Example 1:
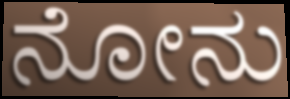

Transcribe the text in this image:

ನೋನು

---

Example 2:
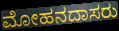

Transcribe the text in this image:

ಮೋಹನದಾಸರು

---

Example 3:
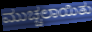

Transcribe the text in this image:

ಮುಚ್ಚಲಾಯಿತು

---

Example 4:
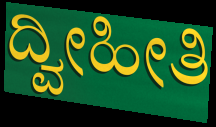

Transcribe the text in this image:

ದ್ವೀಹೀತಿ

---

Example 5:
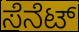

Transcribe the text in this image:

ಸೆನೆಟ್